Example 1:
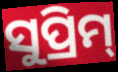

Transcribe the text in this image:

ସୁପ୍ରିମ୍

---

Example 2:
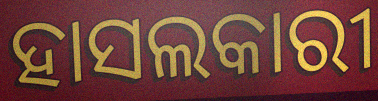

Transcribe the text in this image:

ହାସଲକାରୀ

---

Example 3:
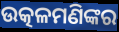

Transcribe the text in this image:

ଉତ୍କଳମଣିଙ୍କର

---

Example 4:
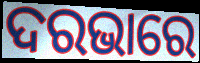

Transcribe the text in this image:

ଦରଭାରେ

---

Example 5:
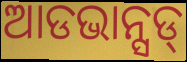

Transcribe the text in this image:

ଆଡଭାନ୍ସଡ୍